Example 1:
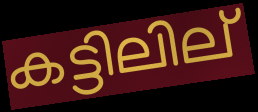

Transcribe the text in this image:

കട്ടിലില്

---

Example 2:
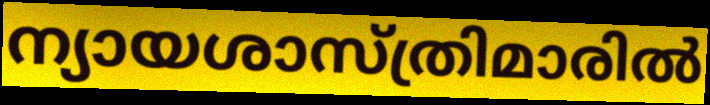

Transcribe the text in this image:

ന്യായശാസ്ത്രിമാരിൽ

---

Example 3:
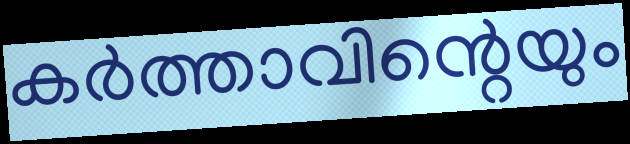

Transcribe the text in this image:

കർത്താവിന്റെയും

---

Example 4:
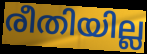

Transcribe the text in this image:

രീതിയില്ല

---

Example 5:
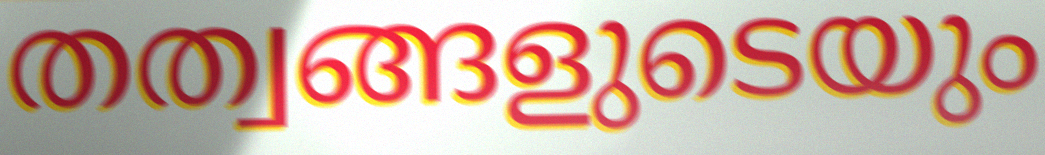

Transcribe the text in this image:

തത്വങ്ങളുടെയും